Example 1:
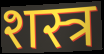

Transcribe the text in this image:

शस्त्र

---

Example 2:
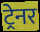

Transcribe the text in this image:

ट्रेनर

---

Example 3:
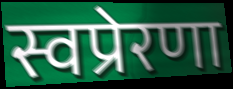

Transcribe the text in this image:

स्वप्रेरणा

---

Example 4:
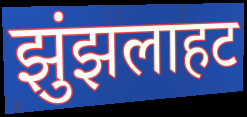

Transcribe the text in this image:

झुंझलाहट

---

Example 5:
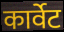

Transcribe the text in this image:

कार्वेट